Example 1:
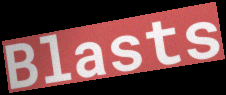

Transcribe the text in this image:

Blasts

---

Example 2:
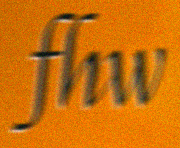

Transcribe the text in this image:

fhw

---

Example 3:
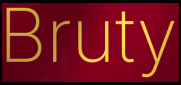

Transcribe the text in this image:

Bruty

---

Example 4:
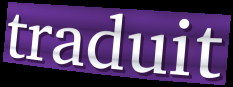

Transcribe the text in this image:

traduit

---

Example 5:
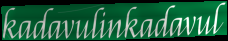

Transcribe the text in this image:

kadavulinkadavul